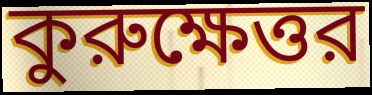
কুরুক্ষেত্তর